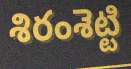
శిరంశెట్టి